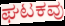
ಘಟಕವು